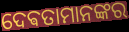
ଦେଵତାମାନଙ୍କର